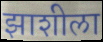
झाशीला